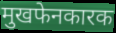
मुखफेनकारक